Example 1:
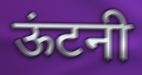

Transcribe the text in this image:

ऊंटनी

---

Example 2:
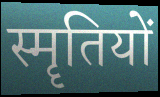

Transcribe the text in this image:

स्मॄतियों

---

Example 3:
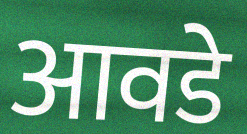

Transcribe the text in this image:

आवडे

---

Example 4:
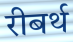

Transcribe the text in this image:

रीबर्थ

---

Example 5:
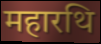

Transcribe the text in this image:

महारथि